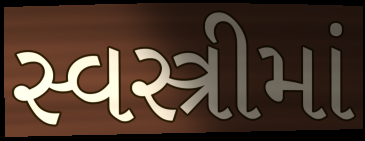
સ્વસ્ત્રીમાં